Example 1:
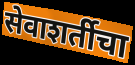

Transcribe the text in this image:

सेवाशर्तीचा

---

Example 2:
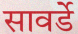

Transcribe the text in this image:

सावर्डे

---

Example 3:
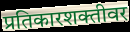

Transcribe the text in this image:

प्रतिकारशक्तीवर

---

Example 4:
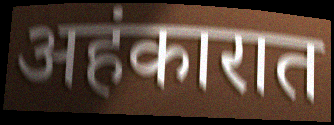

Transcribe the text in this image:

अहंकारात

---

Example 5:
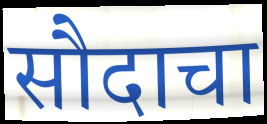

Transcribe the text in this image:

सौदाचा